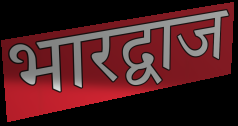
भारद्वाज